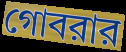
গোবরার